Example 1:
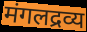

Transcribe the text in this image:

मंगलद्रव्य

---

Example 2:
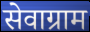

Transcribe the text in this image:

सेवाग्राम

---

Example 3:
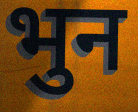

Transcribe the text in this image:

भुन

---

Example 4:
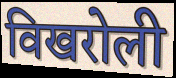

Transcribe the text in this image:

विखरोली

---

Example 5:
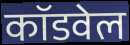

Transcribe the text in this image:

कॉडवेल